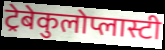
ट्रेबेकुलोप्लास्टी